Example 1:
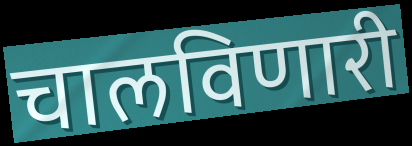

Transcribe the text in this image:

चालविणारी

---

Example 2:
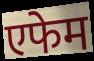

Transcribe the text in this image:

एफेम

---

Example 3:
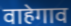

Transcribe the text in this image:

वाहेगाव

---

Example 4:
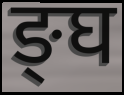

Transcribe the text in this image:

ङ्घ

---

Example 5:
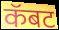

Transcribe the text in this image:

कॅबट